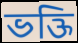
ভক্তি